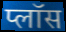
प्लॉस